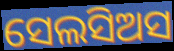
ସେଲସିଅସ